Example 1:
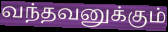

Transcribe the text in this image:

வந்தவனுக்கும்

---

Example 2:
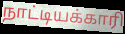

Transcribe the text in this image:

நாட்டியக்காரி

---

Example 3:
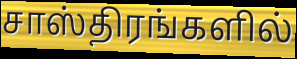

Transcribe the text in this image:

சாஸ்திரங்களில்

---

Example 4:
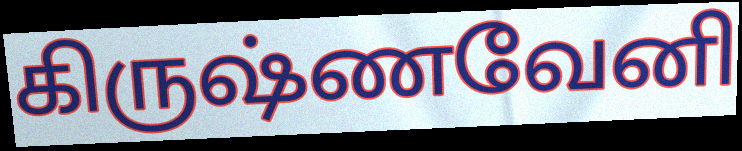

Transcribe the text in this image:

கிருஷ்ணவேனி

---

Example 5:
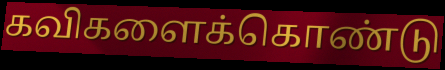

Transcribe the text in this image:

கவிகளைக்கொண்டு